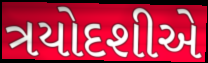
ત્રયોદશીએ